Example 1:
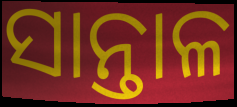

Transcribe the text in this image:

ସାନ୍ତାଳ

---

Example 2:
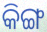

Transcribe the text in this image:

କିଙ୍ଗ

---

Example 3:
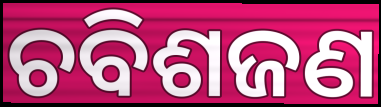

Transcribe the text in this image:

ଚବିଶଜଣ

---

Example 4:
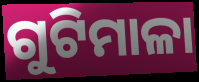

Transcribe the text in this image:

ଗୁଟିମାଳା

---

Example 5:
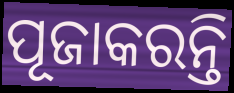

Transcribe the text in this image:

ପୂଜାକରନ୍ତି